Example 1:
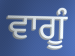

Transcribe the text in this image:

ਵਾਗੂੰ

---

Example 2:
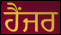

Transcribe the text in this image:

ਹੈਂਜਰ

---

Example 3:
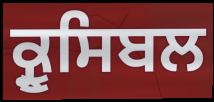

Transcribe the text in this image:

ਕ੍ਰੂਸਿਬਲ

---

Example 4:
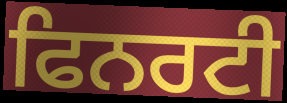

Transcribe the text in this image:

ਫਿਨਰਟੀ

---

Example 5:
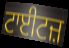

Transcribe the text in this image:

ਟਾਈਟਜ਼